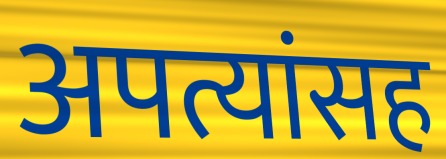
अपत्यांसह